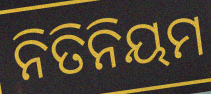
ନିତିନିୟମ